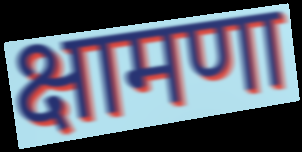
क्षामणा